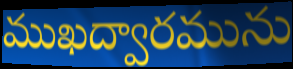
ముఖద్వారమును